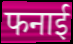
फनाई